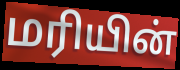
மரியின்